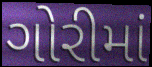
ગોરીમાં